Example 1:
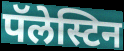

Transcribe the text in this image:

पॅलेस्टिन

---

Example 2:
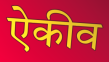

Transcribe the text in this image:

ऐकीव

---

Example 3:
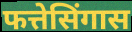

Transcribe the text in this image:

फत्तेसिंगास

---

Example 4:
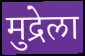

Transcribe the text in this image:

मुद्रेला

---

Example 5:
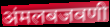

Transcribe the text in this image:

अंमलबजवणी